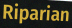
Riparian